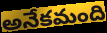
అనేకమంది